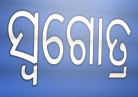
ସ୍ୱଗୋତ୍ର